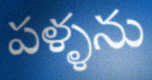
పళ్ళను